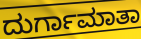
ದುರ್ಗಾಮಾತಾ